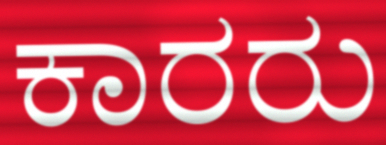
ಕಾರರು